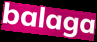
balaga